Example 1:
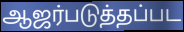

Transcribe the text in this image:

ஆஜர்படுத்தப்பட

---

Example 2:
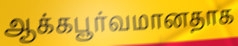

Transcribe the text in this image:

ஆக்கபூர்வமானதாக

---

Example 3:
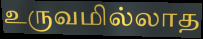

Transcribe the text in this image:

உருவமில்லாத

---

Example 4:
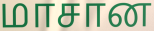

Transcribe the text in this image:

மாசான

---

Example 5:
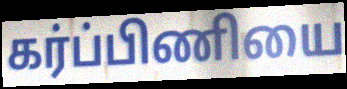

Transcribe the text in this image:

கர்ப்பிணியை